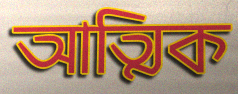
আত্মিক